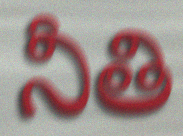
నీతి